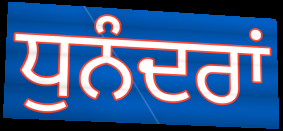
ਧੁਨੰਦਰਾਂ